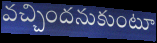
వచ్చిందనుకుంటూ